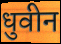
धुवीन